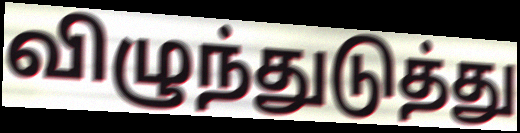
விழுந்துடுத்து